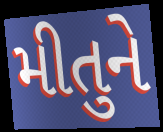
મીતુને